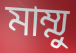
মাম্মু